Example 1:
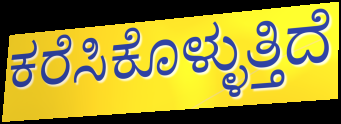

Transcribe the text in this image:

ಕರೆಸಿಕೊಳ್ಳುತ್ತಿದೆ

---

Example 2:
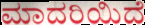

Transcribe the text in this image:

ಮಾದರಿಯಿದೆ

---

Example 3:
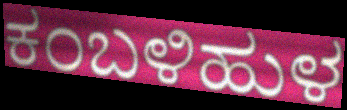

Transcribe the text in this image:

ಕಂಬಳಿಹುಳ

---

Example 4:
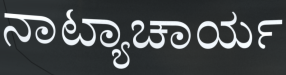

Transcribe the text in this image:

ನಾಟ್ಯಾಚಾರ್ಯ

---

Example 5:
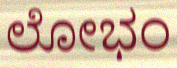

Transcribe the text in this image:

ಲೋಭಂ